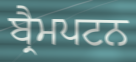
ਬ੍ਰੈਮਪਟਨ